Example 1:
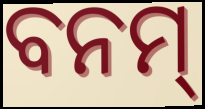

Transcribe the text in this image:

ବନମ୍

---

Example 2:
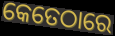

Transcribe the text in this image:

କେତେଠାରେ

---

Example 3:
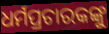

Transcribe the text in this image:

ଧର୍ମପ୍ରଚାରକଙ୍କୁ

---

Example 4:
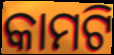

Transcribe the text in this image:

କାମଟି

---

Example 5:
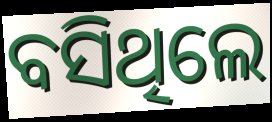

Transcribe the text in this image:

ବସିଥିଲେ